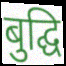
बुद्घि